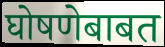
घोषणेबाबत